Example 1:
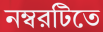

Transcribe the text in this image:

নম্বরটিতে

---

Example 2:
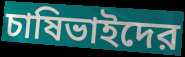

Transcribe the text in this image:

চাষিভাইদের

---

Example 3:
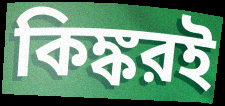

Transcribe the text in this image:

কিঙ্করই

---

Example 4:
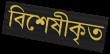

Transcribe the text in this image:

বিশেষীকৃত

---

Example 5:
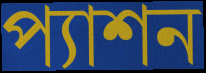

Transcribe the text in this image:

প্যাশন